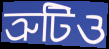
ত্রুটিও